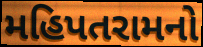
મહિપતરામનો